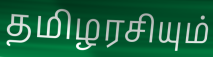
தமிழரசியும்